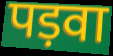
पड़वा